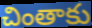
చింతాకు